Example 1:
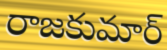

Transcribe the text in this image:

రాజకుమార్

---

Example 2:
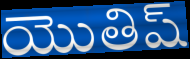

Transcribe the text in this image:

యొతిష్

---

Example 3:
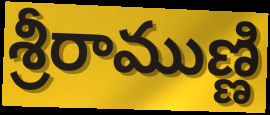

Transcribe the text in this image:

శ్రీరాముణ్ణి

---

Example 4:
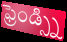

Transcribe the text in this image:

ఫ్రెండ్స్ని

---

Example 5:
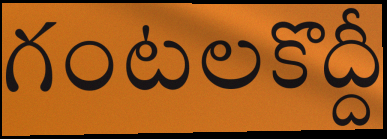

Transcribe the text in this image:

గంటలకొద్దీ